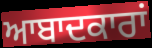
ਆਬਾਦਕਾਰਾਂ